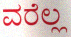
ವರೆಲ್ಲ